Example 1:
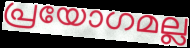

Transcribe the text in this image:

പ്രയോഗമല്ല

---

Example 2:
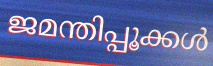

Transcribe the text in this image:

ജമന്തിപ്പൂക്കൾ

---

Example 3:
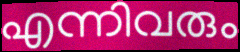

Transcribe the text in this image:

എന്നിവരും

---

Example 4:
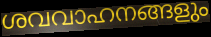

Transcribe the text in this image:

ശവവാഹനങ്ങളും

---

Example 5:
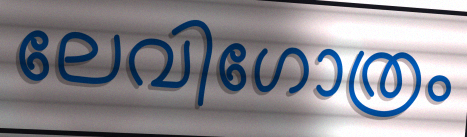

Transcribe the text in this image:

ലേവിഗോത്രം